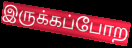
இருக்கப்போற